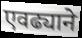
एवढ्याने